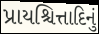
પ્રાયશ્ચિત્તાદિનું